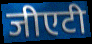
जीएटी